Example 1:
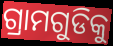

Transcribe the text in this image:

ଗ୍ରାମଗୁଡିକୁ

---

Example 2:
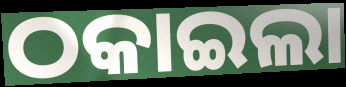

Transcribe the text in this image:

ଠକାଇଲା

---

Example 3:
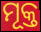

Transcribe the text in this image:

ମୂକ୍ତ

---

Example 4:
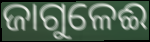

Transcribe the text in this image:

ଜାଗୁଳେଈ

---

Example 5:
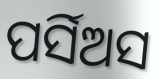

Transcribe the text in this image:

ପର୍ସିଅସ